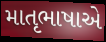
માતૃભાષાએ